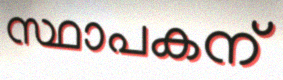
സ്ഥാപകന്